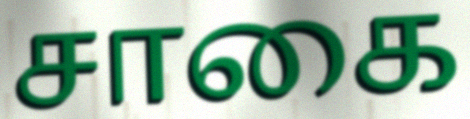
சாகை